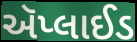
ઍપ્લાઈડ